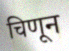
चिणून